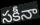
సకీనా